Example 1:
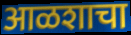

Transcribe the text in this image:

आळशाचा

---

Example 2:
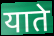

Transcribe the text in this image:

याते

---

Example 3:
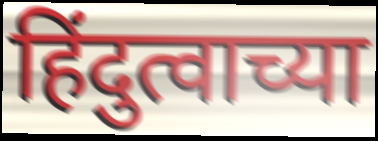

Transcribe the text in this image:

हिंदुत्वाच्या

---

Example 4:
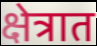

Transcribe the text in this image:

क्षेत्रात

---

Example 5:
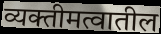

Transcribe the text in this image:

व्यक्तीमत्वातील